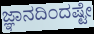
ಜ್ಞಾನದಿಂದಷ್ಟೇ